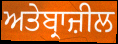
ਅਤੇਬ੍ਰਾਜ਼ੀਲ